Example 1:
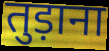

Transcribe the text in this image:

तुड़ाना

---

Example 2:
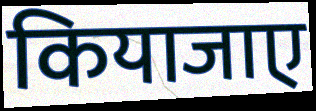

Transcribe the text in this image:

कियाजाए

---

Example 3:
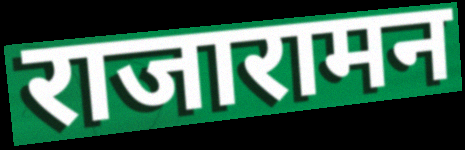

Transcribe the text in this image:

राजारामन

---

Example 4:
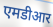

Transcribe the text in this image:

एमडीआर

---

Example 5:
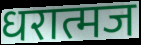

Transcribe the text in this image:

धरात्मज